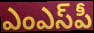
ఎంఎస్‌పీ